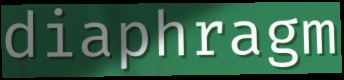
diaphragm